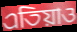
এতিয়াও